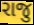
રાજુ